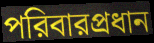
পরিবারপ্রধান